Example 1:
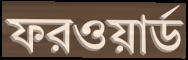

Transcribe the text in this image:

ফরওয়ার্ড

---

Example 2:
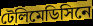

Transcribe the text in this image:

টেলিমেডিসিনে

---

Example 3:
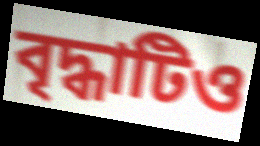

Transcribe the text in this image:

বৃদ্ধাটিও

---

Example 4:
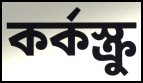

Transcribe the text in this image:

কর্কস্ক্রু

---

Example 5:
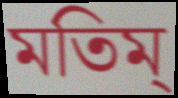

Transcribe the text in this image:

মতিম্